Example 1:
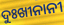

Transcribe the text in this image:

ଦୁଃଖୀନାନୀ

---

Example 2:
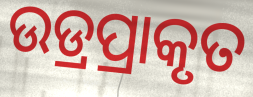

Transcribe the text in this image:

ଉଡ୍ରପ୍ରାକୃତ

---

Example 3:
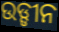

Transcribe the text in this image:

ଉଡ୍ଡୀନ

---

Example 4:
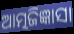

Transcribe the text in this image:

ଆତ୍ମଜିଜ୍ଞାସା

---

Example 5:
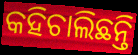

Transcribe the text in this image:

କହିଚାଲିଛନ୍ତି